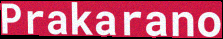
Prakarano